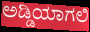
ಅಡ್ಡಿಯಾಗಲಿ